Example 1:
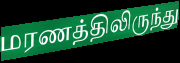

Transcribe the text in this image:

மரணத்திலிருந்து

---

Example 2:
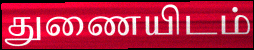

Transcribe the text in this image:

துணையிடம்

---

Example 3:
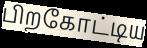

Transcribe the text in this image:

பிறகோட்டிய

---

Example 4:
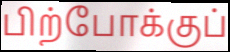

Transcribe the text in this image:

பிற்போக்குப்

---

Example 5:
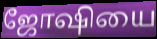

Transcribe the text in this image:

ஜோஷியை